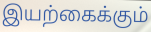
இயற்கைக்கும்